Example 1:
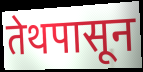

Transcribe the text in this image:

तेथपासून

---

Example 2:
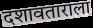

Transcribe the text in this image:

दशावताराला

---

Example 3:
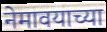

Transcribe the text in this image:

नेमावयाच्या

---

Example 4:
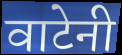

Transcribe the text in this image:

वाटेनी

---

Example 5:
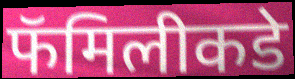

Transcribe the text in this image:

फॅमिलीकडे